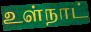
உள்நாட்